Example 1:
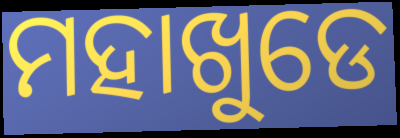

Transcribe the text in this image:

ମହାଖୁଡେ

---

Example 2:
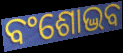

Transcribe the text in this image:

ବଂଶୋଦ୍ଭବ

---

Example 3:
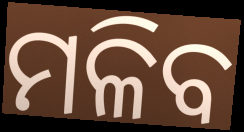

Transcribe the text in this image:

ମଳିବ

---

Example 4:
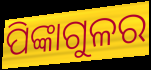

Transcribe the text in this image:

ପିଙ୍କାଗୁଳର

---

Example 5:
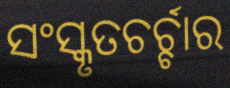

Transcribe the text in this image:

ସଂସ୍କୃତଚର୍ଚ୍ଚାର